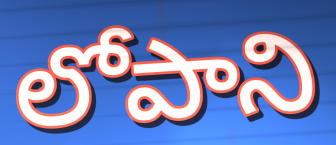
లోపాని